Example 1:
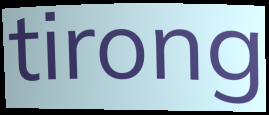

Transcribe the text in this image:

tirong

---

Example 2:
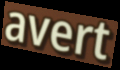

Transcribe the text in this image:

avert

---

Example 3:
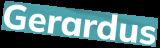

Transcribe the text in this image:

Gerardus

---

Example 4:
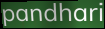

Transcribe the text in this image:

pandhari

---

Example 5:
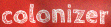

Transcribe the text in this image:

colonizer